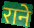
राने